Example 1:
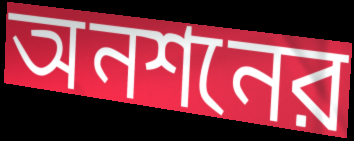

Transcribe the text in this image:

অনশনের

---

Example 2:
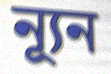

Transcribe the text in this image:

ন্যূন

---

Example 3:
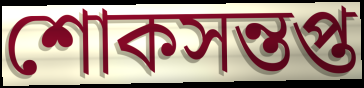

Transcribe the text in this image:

শোকসন্তপ্ত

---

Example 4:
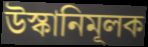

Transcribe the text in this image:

উস্কানিমূলক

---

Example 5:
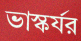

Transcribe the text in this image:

ভাস্কর্যর